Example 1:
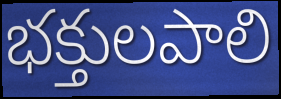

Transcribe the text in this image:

భక్తులపాలి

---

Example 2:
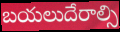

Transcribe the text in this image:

బయలుదేరాల్సి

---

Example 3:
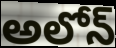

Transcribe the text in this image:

అలోన్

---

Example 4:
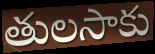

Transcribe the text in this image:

తులసాకు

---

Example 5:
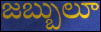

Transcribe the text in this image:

జబ్బులూ